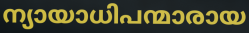
ന്യായാധിപന്മാരായ